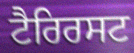
ਟੈਰਿਰਸਟ